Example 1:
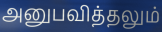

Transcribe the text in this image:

அனுபவித்தலும்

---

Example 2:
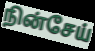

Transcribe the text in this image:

நின்சேய்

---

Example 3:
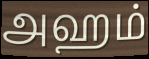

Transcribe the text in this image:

அஹம்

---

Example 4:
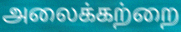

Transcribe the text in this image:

அலைக்கற்றை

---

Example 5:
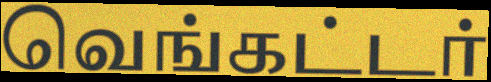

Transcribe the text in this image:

வெங்கட்டர்